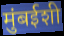
मुंबईशी